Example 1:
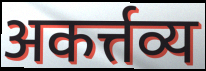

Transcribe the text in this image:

अकर्त्तव्य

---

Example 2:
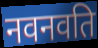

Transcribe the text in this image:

नवनवति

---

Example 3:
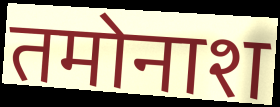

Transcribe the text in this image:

तमोनाश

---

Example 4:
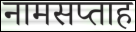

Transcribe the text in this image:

नामसप्ताह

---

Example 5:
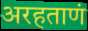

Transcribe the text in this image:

अरहताणं